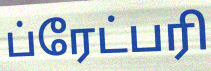
ப்ரேட்பரி